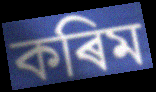
কৰিম